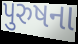
પુરુષના